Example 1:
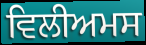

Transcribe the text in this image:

ਵਿਲੀਅਮਸ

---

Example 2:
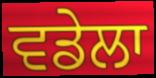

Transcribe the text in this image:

ਵਡੇਲਾ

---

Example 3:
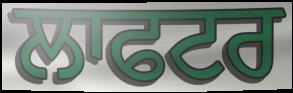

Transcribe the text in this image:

ਲਾਫਟਰ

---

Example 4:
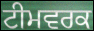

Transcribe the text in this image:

ਟੀਮਵਰਕ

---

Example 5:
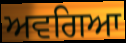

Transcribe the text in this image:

ਅਵਗਿਆ